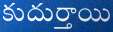
కుదుర్తాయి